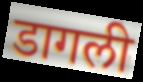
डागली